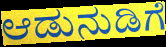
ಆಡುನುಡಿಗೆ